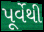
પૂર્વેથી